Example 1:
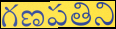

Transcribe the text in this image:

గణపతిని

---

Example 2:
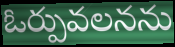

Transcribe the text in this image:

ఓర్పువలనను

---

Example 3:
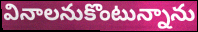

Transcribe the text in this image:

వినాలనుకొంటున్నాను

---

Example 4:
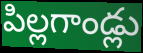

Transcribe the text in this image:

పిల్లగాండ్లు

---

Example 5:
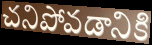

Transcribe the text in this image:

చనిపోవడానికి